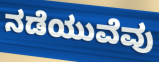
ನಡೆಯುವೆವು